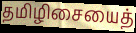
தமிழிசையைத்